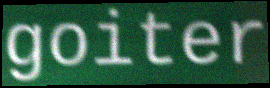
goiter